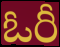
ఓరీ